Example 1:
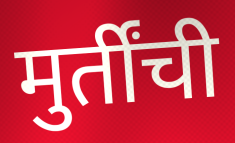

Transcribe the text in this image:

मुर्तींची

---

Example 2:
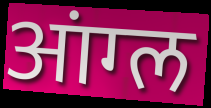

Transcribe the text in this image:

आंग्ल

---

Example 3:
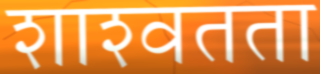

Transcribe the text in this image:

शाश्वतता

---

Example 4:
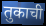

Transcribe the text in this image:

तुकाची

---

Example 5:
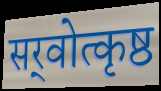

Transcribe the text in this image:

सर्वोत्कृष्ठ